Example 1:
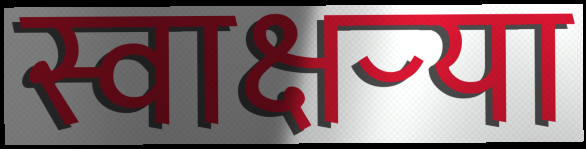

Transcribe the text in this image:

स्वाक्षऱ्या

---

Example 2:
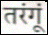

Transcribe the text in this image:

तरंगूं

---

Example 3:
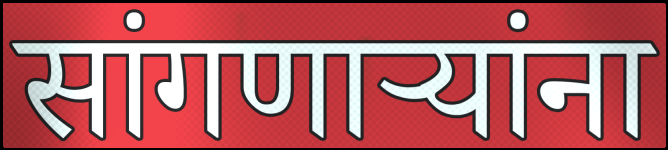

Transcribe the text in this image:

सांगणार्‍यांना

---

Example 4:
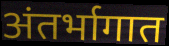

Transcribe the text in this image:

अंतर्भागात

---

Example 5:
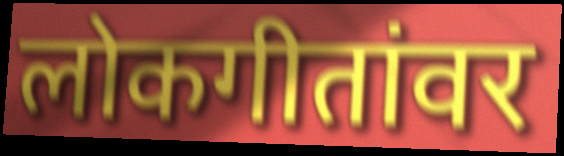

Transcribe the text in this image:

लोकगीतांवर